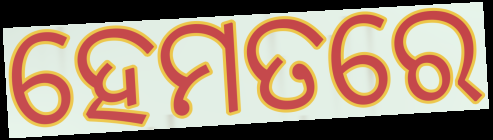
ହେମତରେ